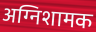
अग्निशामक